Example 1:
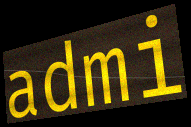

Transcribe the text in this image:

admi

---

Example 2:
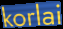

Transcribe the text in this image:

korlai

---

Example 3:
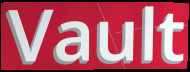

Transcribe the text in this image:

Vault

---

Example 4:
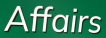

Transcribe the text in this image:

Affairs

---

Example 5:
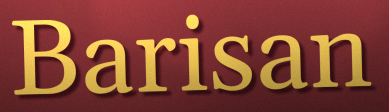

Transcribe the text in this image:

Barisan